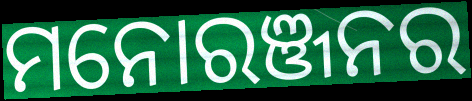
ମନୋରଞ୍ଜନର